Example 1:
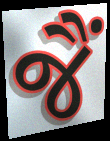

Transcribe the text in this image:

જૈં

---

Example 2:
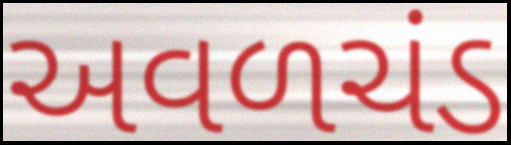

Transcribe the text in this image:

અવળચંડ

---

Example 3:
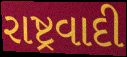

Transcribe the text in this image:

રાષ્ટ્રવાદી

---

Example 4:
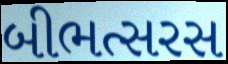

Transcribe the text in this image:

બીભત્સરસ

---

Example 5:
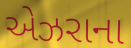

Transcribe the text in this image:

એઝરાના